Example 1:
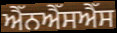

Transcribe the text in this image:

ਐੱਨਐੱਸਐੱਸ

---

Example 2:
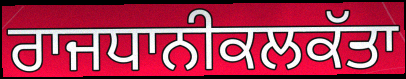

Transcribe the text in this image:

ਰਾਜਧਾਨੀਕਲਕੱਤਾ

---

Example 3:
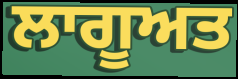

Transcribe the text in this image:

ਲਾਗੂਅਤ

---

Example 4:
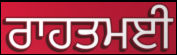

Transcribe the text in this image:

ਰਾਹਤਮਈ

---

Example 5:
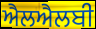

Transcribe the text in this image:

ਐਲਐਲਬੀ